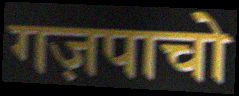
गज़पाचो